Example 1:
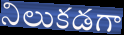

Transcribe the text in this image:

నిలుకడగా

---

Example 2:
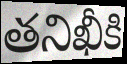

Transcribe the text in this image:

తనిఖీకి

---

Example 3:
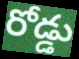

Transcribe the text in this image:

రోడ్డు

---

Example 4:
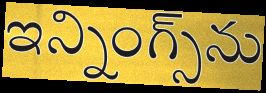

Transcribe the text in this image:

ఇన్నింగ్స్‌ను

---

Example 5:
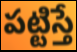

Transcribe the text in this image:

పట్టిస్తే